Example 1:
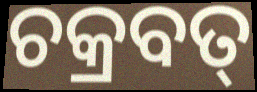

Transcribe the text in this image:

ଚକ୍ରବତ୍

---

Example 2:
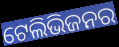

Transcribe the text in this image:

ଟେଲିଭିଜନର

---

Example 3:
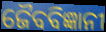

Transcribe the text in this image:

ଜୈବବିଜ୍ଞାନୀ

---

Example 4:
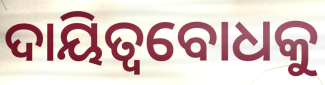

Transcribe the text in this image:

ଦାୟିତ୍ୱବୋଧକୁ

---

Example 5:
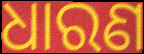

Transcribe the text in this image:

ଧାରଣ